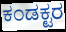
ಕಂಡಕ್ಟರ